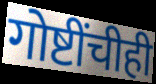
गोष्टींचीही